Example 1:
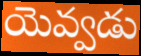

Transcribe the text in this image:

యెవ్వడు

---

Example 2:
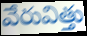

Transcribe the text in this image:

వేరువిత్తు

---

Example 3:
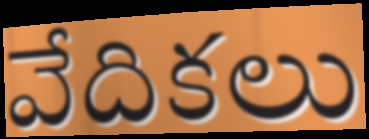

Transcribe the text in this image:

వేదికలు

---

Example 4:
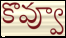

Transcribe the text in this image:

కొవ్వూ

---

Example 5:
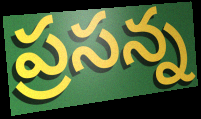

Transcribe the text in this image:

ప్రసన్న